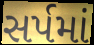
સર્પમાં